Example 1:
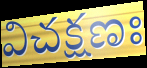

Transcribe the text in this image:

విచక్షణః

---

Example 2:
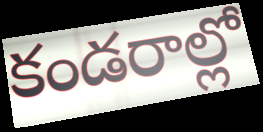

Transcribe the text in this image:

కండరాల్లో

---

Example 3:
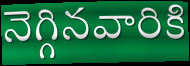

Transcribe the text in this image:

నెగ్గినవారికి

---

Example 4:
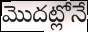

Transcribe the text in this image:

మొదట్లోనే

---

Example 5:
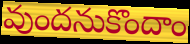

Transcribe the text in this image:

వుందనుకొందాం